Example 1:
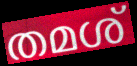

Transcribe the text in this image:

തമശ്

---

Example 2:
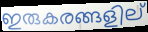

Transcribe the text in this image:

ഇരുകരങ്ങളില്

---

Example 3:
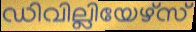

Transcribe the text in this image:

ഡിവില്ലിയേഴ്സ്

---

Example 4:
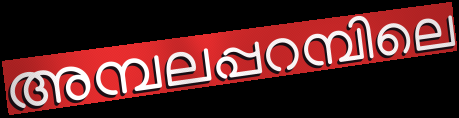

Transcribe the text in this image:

അമ്പലപ്പറമ്പിലെ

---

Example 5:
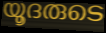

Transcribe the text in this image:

യൂദരുടെ